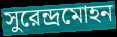
সুরেন্দ্রমোহন